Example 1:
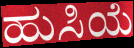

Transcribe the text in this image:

ಹುಸಿಯೆ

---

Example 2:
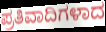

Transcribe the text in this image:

ಪ್ರತಿವಾದಿಗಳಾದ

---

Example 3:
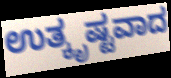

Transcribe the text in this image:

ಉತ್ಕೃಷ್ಟವಾದ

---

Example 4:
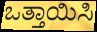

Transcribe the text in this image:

ಒತ್ತಾಯಿಸಿ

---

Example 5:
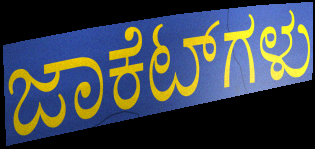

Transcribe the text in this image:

ಜಾಕೆಟ್‌ಗಳು